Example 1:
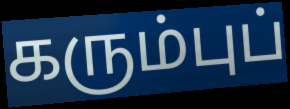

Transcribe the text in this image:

கரும்புப்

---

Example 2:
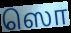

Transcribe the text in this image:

ஸொ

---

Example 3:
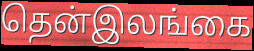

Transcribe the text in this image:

தென்இலங்கை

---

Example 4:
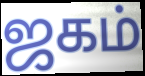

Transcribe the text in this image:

ஜகம்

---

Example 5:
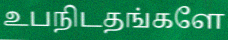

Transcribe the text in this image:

உபநிடதங்களே